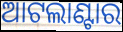
ଆଟଲାଣ୍ଟାର